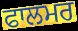
ਫਾਲਮਰ